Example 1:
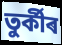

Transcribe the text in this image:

তুৰ্কীৰ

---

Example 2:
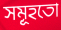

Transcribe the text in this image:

সমূহতো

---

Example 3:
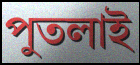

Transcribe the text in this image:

পুতলাই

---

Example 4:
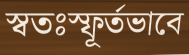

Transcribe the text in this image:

স্বতঃস্ফূৰ্তভাবে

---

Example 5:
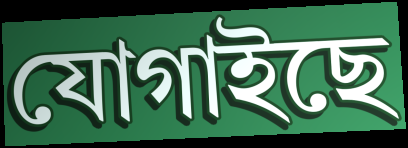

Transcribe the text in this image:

যোগাইছে